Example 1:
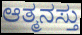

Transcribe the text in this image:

ಆತ್ಮನಸ್ತು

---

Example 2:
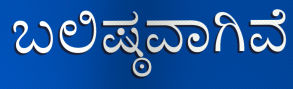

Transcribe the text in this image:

ಬಲಿಷ್ಠವಾಗಿವೆ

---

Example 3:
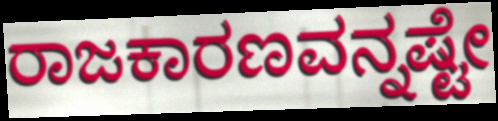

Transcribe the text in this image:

ರಾಜಕಾರಣವನ್ನಷ್ಟೇ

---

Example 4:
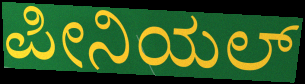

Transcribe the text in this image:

ಪೀನಿಯಲ್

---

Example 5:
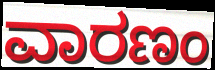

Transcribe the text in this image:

ವಾರಣಂ